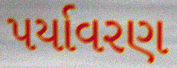
પર્યાવરણ